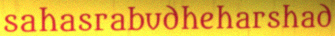
sahasrabudheharshad